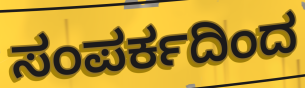
ಸಂಪರ್ಕದಿಂದ